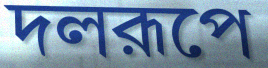
দলরূপে